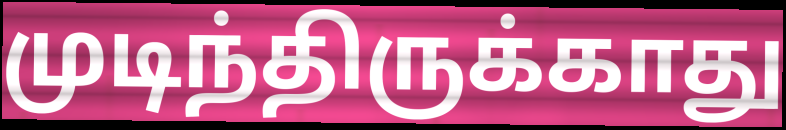
முடிந்திருக்காது